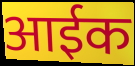
आईक